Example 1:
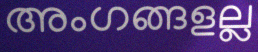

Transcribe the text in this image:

അംഗങ്ങളല്ല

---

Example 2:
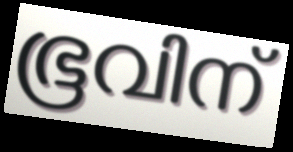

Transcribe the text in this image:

ഭൂവിന്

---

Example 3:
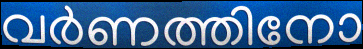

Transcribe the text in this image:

വർണത്തിനോ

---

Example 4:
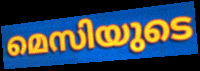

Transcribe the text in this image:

മെസിയുടെ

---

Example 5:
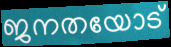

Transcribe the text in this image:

ജനതയോട്